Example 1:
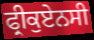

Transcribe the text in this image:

ਫ੍ਰੀਕੁਏਨਸੀ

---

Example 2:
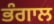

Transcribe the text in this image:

ਭੰਗਾਲ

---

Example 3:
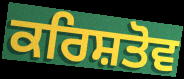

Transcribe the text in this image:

ਕਰਿਸ਼ਤੋਵ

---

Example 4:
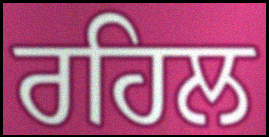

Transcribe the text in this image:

ਰਹਿਲ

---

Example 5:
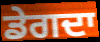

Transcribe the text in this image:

ਡੇਗਦਾ